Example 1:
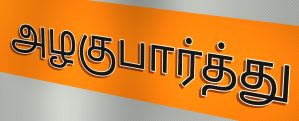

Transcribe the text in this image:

அழகுபார்த்து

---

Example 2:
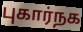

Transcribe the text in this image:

புகார்நக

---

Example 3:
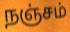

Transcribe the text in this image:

நஞ்சம்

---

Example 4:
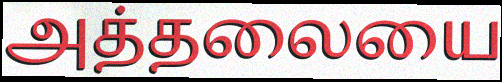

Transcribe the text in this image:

அத்தலையை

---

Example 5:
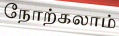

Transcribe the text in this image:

நோற்கலாம்